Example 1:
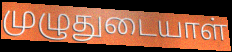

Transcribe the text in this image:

முழுதுடையாள்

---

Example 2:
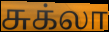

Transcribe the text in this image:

சுக்லா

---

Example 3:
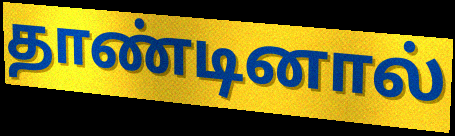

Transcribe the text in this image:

தாண்டினால்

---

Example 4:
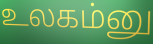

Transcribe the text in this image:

உலகம்னு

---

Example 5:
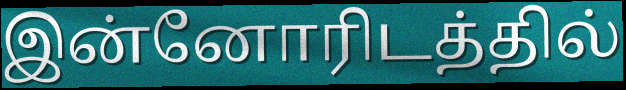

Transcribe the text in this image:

இன்னோரிடத்தில்